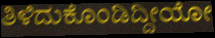
ತಿಳಿದುಕೊಂಡಿದ್ದೀಯೋ